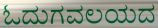
ಓದುಗವಲಯದ